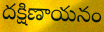
దక్షిణాయనం